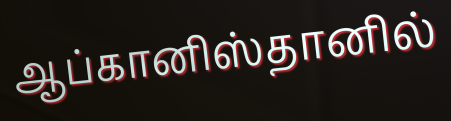
ஆப்கானிஸ்தானில்